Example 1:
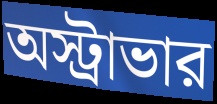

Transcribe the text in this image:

অস্ট্রাভার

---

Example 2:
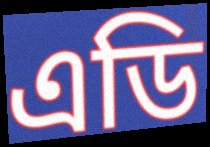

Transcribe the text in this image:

এডি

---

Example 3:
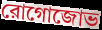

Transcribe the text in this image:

রোগোজোভ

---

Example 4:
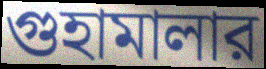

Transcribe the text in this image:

গুহামালার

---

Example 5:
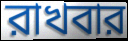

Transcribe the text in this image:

রাখবার